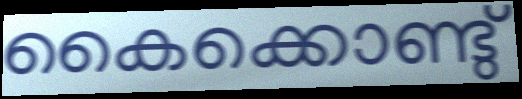
കൈക്കൊണ്ടു്